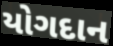
યોગદાન